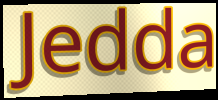
Jedda